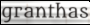
granthas